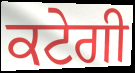
ਕਟੇਗੀ